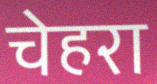
चेहरा